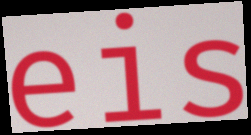
eis